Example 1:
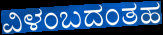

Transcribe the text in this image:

ವಿಳಂಬದಂತಹ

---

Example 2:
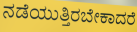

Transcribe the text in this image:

ನಡೆಯುತ್ತಿರಬೇಕಾದರೆ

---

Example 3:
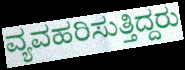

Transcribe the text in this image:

ವ್ಯವಹರಿಸುತ್ತಿದ್ದರು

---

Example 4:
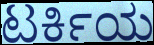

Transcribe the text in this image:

ಟರ್ಕಿಯ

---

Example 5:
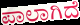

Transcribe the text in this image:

ಪಾಲಾಗಿದೆ